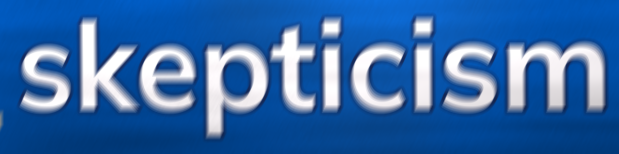
skepticism